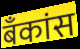
बँकांस